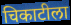
चिकाटीला